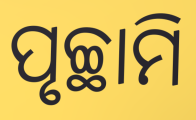
ପୃଚ୍ଛାମି